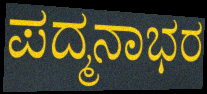
ಪದ್ಮನಾಭರ